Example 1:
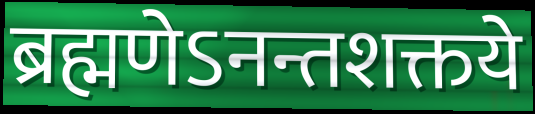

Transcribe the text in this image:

ब्रह्मणेऽनन्तशक्तये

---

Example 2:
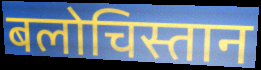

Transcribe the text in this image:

बलोचिस्तान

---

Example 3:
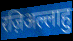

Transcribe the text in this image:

रज़िअल्लाहु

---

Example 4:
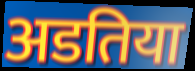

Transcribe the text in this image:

अडतिया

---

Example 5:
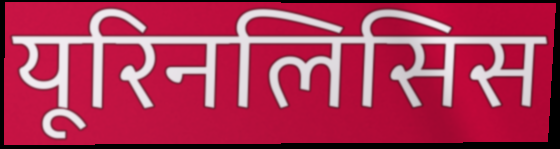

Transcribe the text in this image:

यूरिनलिसिस